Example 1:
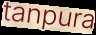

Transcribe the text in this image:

tanpura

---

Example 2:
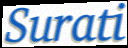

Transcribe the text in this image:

Surati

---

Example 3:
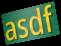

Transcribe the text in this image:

asdf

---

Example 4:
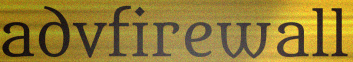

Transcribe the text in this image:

advfirewall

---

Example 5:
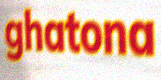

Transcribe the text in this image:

ghatona